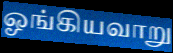
ஓங்கியவாறு